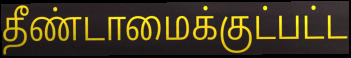
தீண்டாமைக்குட்பட்ட